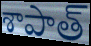
శాపాత్